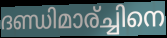
ദണ്ഡിമാര്ച്ചിനെ